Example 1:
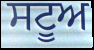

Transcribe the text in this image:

ਸਟੂਅ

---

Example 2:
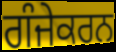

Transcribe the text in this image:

ਗੰਜੇਕਰਨ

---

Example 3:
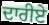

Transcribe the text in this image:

ਦਾਰੀਏ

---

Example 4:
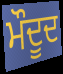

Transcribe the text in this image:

ਮੌਦੂਦ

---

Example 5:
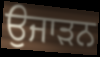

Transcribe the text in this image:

ਉਜਾੜਨ